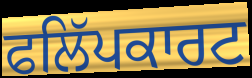
ਫਲਿੱਪਕਾਰਟ